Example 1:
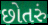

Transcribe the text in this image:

છોતરું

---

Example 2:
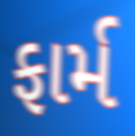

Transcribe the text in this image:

ફાર્મ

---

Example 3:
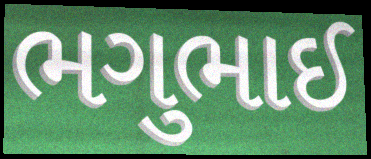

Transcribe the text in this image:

ભગુભાઈ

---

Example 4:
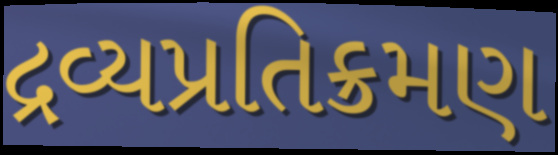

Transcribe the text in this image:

દ્રવ્યપ્રતિક્રમણ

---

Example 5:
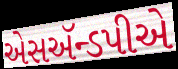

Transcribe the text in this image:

એસઍન્ડપીએ